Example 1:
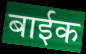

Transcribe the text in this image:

बाईक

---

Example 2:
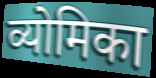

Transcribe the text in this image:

व्योमिका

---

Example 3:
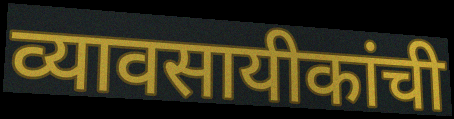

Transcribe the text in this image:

व्यावसायीकांची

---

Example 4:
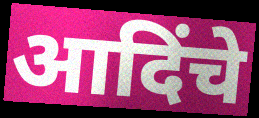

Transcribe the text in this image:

आदिंचे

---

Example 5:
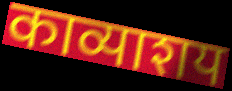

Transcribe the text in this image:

काव्याशय